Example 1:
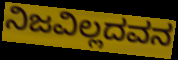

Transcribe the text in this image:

ನಿಜವಿಲ್ಲದವನ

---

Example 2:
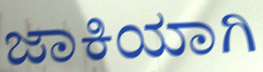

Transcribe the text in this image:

ಜಾಕಿಯಾಗಿ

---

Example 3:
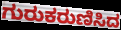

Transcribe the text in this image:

ಗುರುಕರುಣಿಸಿದ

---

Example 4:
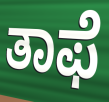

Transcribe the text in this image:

ತಾಫೆ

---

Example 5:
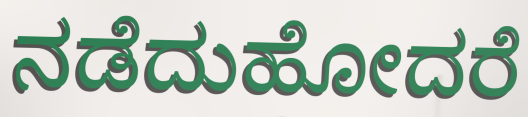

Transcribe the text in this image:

ನಡೆದುಹೋದರೆ